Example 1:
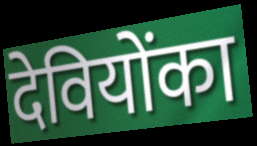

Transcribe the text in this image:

देवियोंका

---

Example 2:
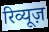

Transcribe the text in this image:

रिव्यूज़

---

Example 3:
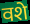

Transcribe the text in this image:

वशे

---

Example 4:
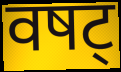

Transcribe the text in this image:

वषट्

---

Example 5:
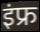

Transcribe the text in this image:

इंफ्र